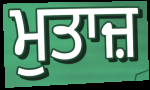
ਮੁਤਾਜ਼